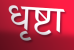
धृष्टा